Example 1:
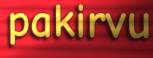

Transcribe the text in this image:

pakirvu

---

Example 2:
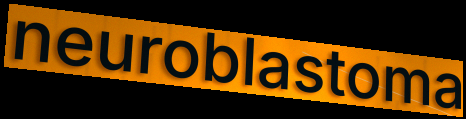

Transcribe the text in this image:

neuroblastoma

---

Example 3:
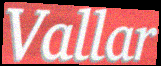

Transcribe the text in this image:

Vallar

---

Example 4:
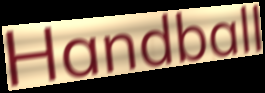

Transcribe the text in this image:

Handball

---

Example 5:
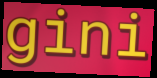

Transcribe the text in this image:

gini